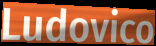
Ludovico